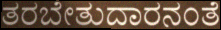
ತರಬೇತುದಾರನಂತೆ